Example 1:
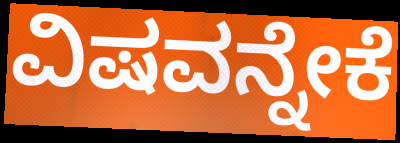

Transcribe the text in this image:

ವಿಷವನ್ನೇಕೆ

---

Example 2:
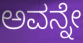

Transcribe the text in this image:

ಅವನ್ನೇ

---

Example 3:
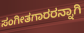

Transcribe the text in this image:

ಸಂಗೀತಗಾರರನ್ನಾಗಿ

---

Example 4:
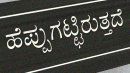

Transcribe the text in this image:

ಹೆಪ್ಪುಗಟ್ಟಿರುತ್ತದೆ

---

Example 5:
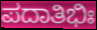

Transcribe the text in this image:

ಪದಾತಿಭಿಃ